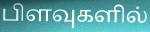
பிளவுகளில்